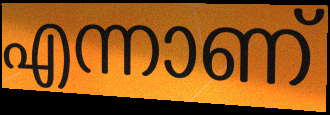
എന്നാണ്